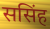
ससिंह